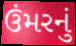
ઉંમરનું